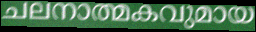
ചലനാത്മകവുമായ